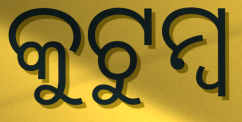
କୁଟୁମ୍ୱ